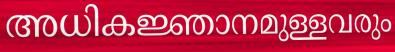
അധികജ്ഞാനമുള്ളവരും